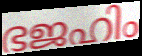
ഭജഹിം